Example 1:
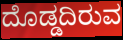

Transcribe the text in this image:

ದೊಡ್ಡದಿರುವ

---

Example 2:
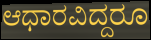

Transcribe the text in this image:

ಆಧಾರವಿದ್ದರೂ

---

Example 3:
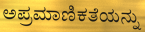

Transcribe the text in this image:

ಅಪ್ರಮಾಣಿಕತೆಯನ್ನು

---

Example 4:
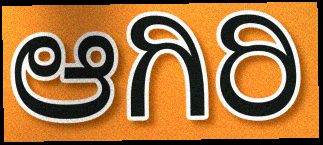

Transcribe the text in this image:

ಆಗಿರಿ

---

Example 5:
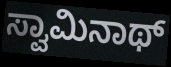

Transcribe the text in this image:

ಸ್ವಾಮಿನಾಥ್